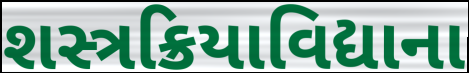
શસ્ત્રક્રિયાવિદ્યાના